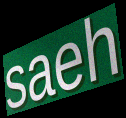
saeh